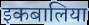
इकबालिया